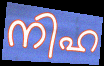
നിഹ